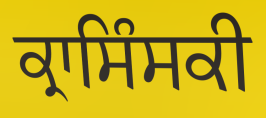
ਕ੍ਰਾਸਿੰਸਕੀ